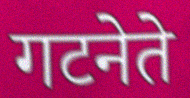
गटनेते